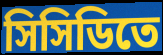
সিসিডিতে